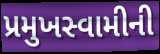
પ્રમુખસ્વામીની